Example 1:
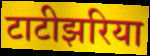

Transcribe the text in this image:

टाटीझरिया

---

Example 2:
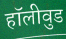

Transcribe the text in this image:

हॉलीवुड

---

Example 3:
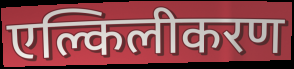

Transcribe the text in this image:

एल्किलीकरण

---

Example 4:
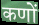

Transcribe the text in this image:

कणों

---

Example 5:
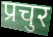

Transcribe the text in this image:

प्रचुर